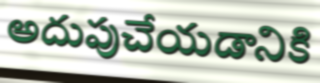
అదుపుచేయడానికి